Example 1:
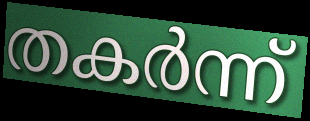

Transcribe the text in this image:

തകർന്ന്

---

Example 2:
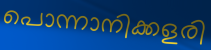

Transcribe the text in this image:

പൊന്നാനിക്കളരി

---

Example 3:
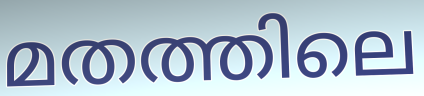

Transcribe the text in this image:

മതത്തിലെ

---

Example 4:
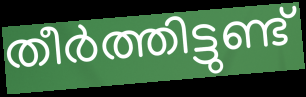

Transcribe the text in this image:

തീർത്തിട്ടുണ്ട്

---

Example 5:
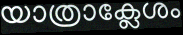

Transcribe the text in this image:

യാത്രാക്ലേശം